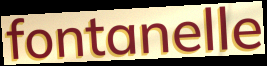
fontanelle